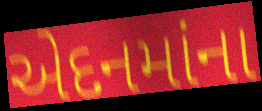
એદનમાંના